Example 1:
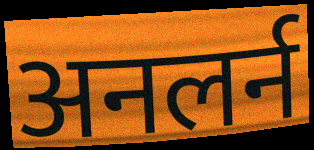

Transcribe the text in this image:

अनलर्न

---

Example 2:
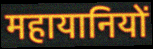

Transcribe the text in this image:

महायानियों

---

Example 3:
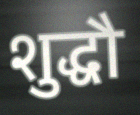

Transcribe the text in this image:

शुद्धौ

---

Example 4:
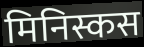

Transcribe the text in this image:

मिनिस्कस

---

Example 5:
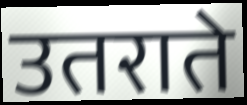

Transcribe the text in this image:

उतराते